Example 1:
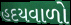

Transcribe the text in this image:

હદયવાળો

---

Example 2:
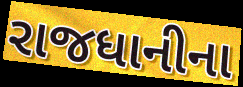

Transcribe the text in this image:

રાજધાનીના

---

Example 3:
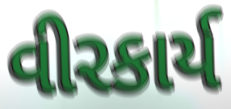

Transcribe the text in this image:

વીરકાર્ય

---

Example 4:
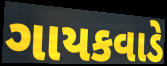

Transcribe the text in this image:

ગાયકવાડે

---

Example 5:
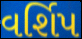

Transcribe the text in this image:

વર્શિપ